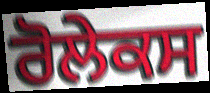
ਰੋਲੇਕਸ